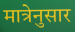
मात्रेनुसार